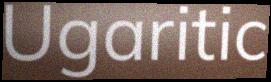
Ugaritic